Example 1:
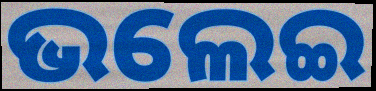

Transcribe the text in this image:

ଭଲେଇ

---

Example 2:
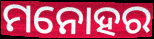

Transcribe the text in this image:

ମନୋହର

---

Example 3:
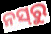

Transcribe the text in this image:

ନସ୍‍ରୁ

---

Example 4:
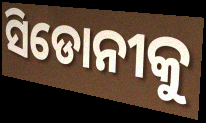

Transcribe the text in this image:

ସିଡୋନୀକୁ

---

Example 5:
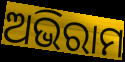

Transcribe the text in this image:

ଅଭିରାମ